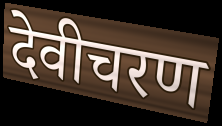
देवीचरण